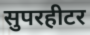
सुपरहीटर